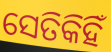
ସେତିକିହିଁ